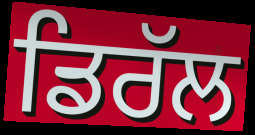
ਡਿਰੱਲ